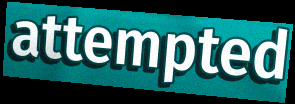
attempted